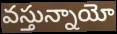
వస్తున్నాయో